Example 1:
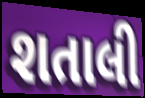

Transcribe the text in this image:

શતાલી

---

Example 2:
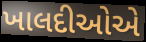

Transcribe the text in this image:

ખાલદીઓએ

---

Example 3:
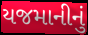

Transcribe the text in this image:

યજમાનીનું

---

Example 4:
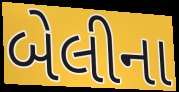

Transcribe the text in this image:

બેલીના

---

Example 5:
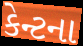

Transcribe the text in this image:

કેન્ટના